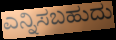
ಎನ್ನಿಸಬಹುದು